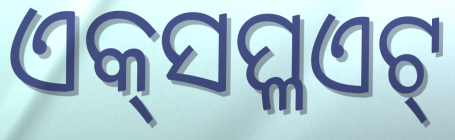
ଏକ୍‍ସପ୍ଳଏଟ୍